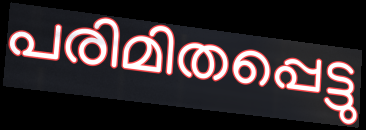
പരിമിതപ്പെട്ടു